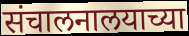
संचालनालयाच्या